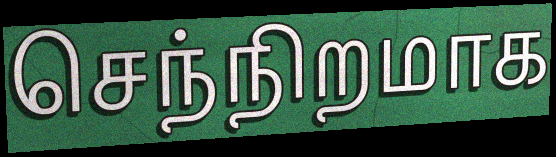
செந்நிறமாக